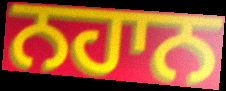
ਨਹਾਨ